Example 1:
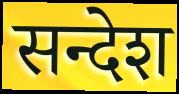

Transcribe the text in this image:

सन्देश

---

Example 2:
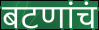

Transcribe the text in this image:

बटणांचं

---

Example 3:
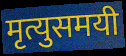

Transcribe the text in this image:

मृत्युसमयी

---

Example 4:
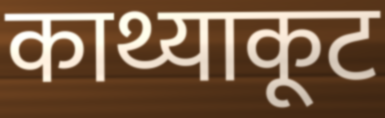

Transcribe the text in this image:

काथ्याकूट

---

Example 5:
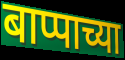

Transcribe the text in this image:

बाप्पाच्या